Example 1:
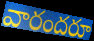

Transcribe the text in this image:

వారందరూ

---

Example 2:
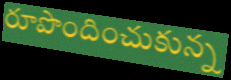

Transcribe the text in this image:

రూపొందించుకున్న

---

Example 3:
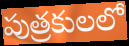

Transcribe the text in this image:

పుత్రకులలో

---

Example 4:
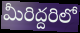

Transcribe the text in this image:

మీరిద్దరిలో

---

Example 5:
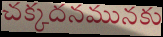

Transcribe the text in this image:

చక్కదనమునకు